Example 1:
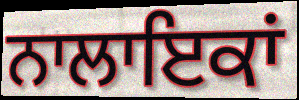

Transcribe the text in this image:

ਨਾਲਾਇਕਾਂ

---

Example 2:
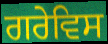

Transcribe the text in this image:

ਗਰੇਵਿਸ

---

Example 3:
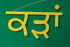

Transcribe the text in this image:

ਕੜਾਂ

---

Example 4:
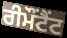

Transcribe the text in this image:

ਰੀਮੌਂਟੈਂਟ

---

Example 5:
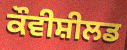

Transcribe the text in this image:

ਕੌਵੀਸ਼ੀਲਡ